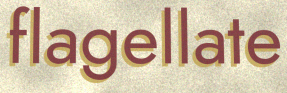
flagellate